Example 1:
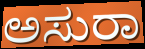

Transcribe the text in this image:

ಅಸುರಾ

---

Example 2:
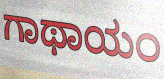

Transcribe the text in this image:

ಗಾಥಾಯಂ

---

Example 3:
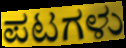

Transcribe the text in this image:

ಪಟಗಳು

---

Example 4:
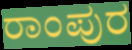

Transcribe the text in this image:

ರಾಂಪುರ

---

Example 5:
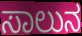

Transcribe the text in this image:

ಸಾಲುನ